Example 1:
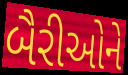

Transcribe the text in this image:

બૈરીઓને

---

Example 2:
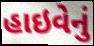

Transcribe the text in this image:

હાઇવેનું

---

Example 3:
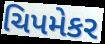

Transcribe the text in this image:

ચિપમેકર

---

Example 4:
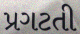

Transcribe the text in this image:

પ્રગટતી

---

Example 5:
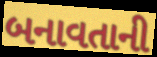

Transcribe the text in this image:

બનાવતાની